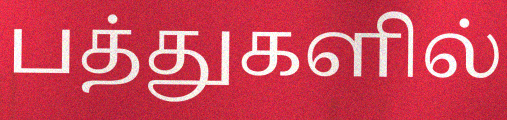
பத்துகளில்